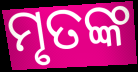
ମୃତଙ୍କ